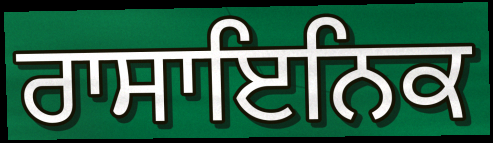
ਰਾਸਾਇਨਿਕ